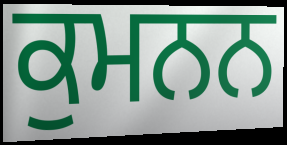
ਕੁਮਨਨ